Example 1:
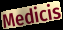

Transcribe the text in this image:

Medicis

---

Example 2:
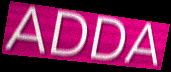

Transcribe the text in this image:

ADDA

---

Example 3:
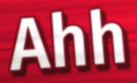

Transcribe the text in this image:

Ahh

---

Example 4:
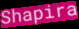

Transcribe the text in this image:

Shapira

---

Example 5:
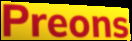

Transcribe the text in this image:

Preons